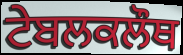
ਟੇਬਲਕਲੌਥ